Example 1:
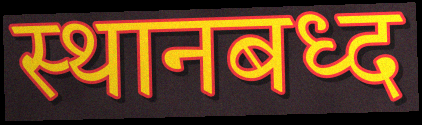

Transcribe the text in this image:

स्थानबध्द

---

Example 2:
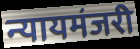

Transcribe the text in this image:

न्यायमंजरी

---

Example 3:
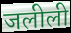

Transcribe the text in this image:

जलीली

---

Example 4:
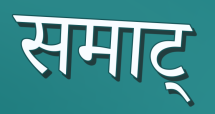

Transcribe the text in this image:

समाट्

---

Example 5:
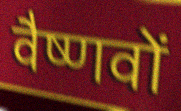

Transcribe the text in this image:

वैष्णवों